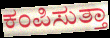
ಕಂಪಿಸುತ್ತಾ